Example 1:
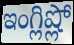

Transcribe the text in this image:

ఇంగ్లిష్లో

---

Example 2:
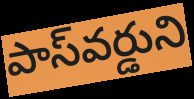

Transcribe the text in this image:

పాస్‌వర్డుని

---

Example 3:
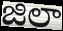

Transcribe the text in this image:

జిలా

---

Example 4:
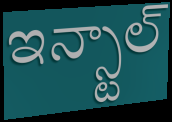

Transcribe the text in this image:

ఇన్స్టాల్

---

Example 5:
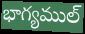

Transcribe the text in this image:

భాగ్యముల్